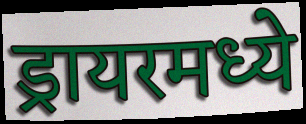
ड्रायरमध्ये